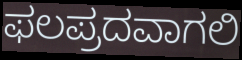
ಫಲಪ್ರದವಾಗಲಿ